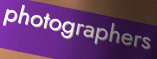
photographers